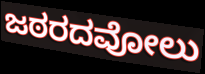
ಜಠರದವೋಲು